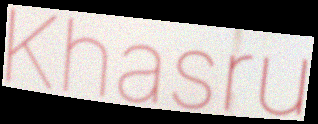
Khasru